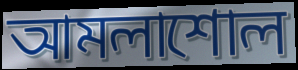
আমলাশোল